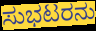
ಸುಭಟರನು